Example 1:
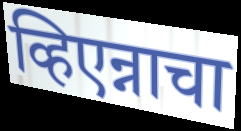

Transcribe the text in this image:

व्हिएन्नाचा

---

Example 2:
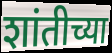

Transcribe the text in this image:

शांतीच्या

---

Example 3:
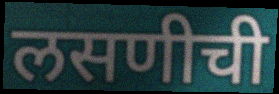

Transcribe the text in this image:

लसणीची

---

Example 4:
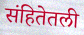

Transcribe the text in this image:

संहितेतली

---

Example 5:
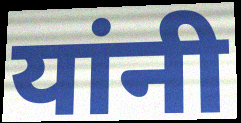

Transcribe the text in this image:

यांनी